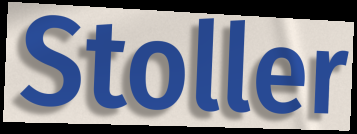
Stoller